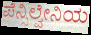
ಪೆನ್ಸಿಲ್ವೇನಿಯ